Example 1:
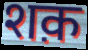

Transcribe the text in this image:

शक़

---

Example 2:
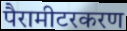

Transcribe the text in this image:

पैरामीटरकरण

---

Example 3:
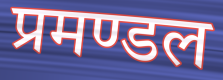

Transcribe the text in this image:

प्रमण्डल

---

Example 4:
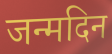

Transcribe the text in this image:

जन्मदिन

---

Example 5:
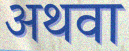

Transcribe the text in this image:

अथवा